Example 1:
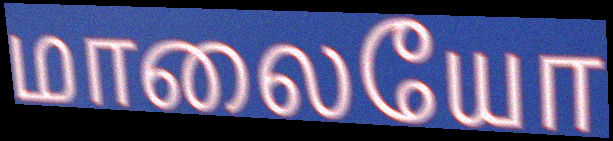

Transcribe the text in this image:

மாலையோ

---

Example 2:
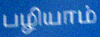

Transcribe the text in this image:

பழியாம்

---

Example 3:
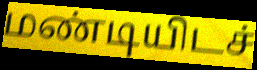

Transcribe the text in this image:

மண்டியிடச்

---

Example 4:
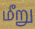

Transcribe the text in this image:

மீறு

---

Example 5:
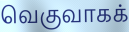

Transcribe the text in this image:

வெகுவாகக்